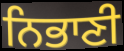
ਨਿਭਾਣੀ